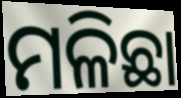
ମଳିଛା